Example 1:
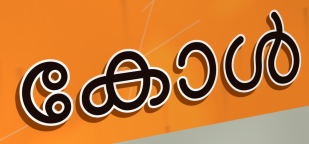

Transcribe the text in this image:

കോൾ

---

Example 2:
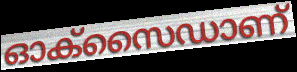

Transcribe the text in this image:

ഓക്സൈഡാണ്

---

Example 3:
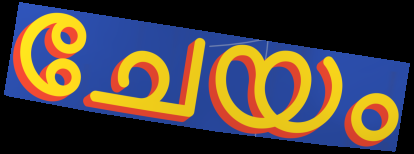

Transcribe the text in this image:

ചേയം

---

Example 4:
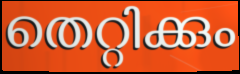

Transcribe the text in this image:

തെറ്റിക്കും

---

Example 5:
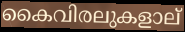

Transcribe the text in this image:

കൈവിരലുകളാല്